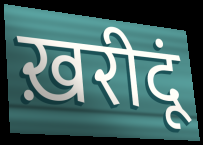
ख़रीदूं